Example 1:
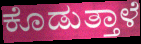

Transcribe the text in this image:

ಕೊಡುತ್ತಾಳೆ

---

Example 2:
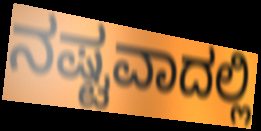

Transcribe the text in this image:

ನಷ್ಟವಾದಲ್ಲಿ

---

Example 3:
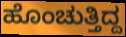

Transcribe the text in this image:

ಹೊಂಚುತ್ತಿದ್ದ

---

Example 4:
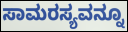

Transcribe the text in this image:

ಸಾಮರಸ್ಯವನ್ನೂ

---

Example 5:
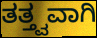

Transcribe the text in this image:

ತತ್ತ್ವವಾಗಿ